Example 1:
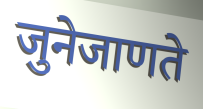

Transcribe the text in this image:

जुनेजाणते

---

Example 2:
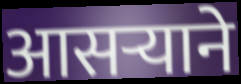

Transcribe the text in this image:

आसर्‍याने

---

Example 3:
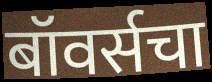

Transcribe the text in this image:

बॉवर्सचा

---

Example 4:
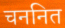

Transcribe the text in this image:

चननित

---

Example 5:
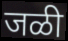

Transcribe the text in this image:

जळी